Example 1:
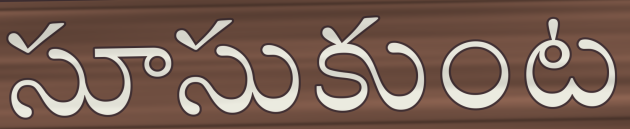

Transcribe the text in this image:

సూసుకుంట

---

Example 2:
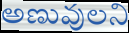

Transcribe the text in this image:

అణువులని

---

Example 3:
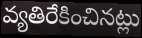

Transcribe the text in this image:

వ్యతిరేకించినట్లు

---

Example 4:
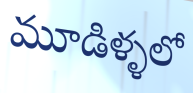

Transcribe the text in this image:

మూడిళ్ళలో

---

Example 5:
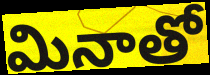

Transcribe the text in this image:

మినాతో